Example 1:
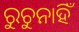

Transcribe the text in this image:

ରୁଚୁନାହିଁ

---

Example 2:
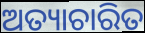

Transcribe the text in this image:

ଅତ୍ୟାଚାରିତ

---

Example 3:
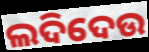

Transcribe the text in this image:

ଲଦିଦେଉ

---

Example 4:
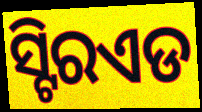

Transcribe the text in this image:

ସ୍ଟିରଏଡ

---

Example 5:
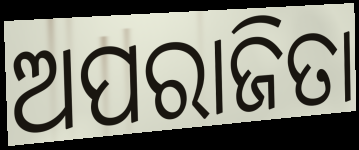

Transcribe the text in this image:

ଅପରାଜିତା